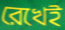
রেখেই